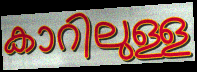
കാറിലുള്ള